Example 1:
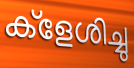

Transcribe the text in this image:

ക്ളേശിച്ചു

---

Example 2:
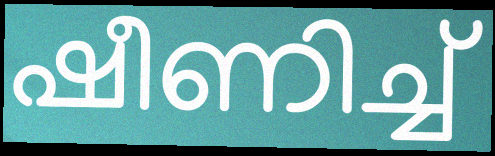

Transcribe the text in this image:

ഷീണിച്ച്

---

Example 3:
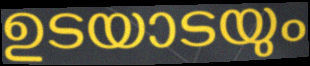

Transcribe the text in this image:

ഉടയാടയും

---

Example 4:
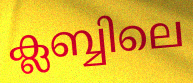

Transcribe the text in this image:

ക്ലബ്ബിലെ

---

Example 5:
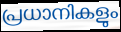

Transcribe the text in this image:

പ്രധാനികളും